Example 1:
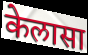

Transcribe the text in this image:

केलासा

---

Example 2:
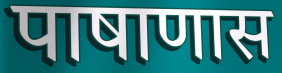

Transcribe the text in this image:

पाषाणास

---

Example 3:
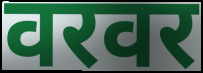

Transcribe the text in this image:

वरवर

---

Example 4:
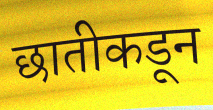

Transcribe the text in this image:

छातीकडून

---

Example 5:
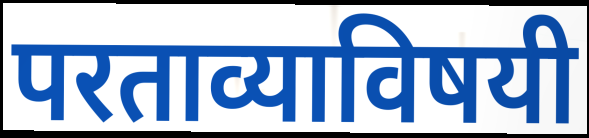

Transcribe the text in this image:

परताव्याविषयी